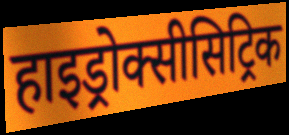
हाइड्रोक्सीसिट्रिक